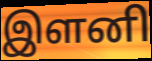
இளனி